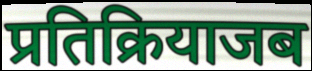
प्रतिक्रियाजब